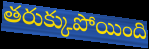
తరుక్కుపోయింది